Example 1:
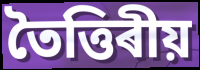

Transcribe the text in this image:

তৈত্তিৰীয়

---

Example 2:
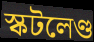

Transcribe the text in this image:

স্কটলেণ্ড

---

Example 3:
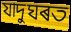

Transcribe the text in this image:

যাদুঘৰত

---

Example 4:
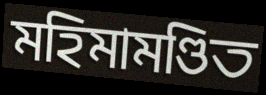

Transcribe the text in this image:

মহিমামণ্ডিত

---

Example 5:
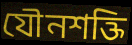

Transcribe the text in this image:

যৌনশক্তি